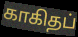
காகிதப்